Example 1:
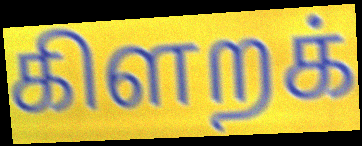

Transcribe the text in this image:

கிளறக்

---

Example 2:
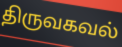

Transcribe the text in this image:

திருவகவல்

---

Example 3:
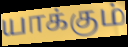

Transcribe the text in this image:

யாக்கும்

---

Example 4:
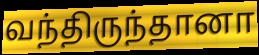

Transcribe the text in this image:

வந்திருந்தானா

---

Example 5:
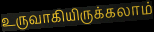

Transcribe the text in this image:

உருவாகியிருக்கலாம்